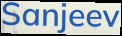
Sanjeev